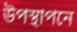
উপস্থাপনে